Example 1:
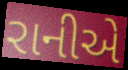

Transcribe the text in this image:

રાનીએ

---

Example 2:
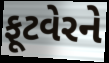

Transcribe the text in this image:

ફૂટવેરને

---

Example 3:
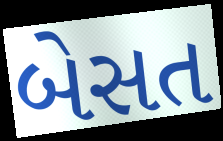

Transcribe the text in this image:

બેસત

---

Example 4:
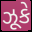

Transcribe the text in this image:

ઝૂકે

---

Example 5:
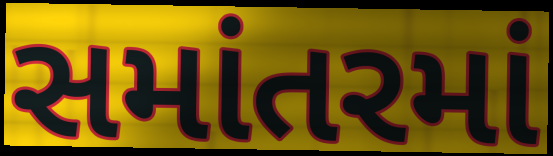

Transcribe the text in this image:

સમાંતરમાં